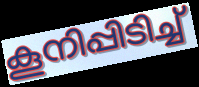
കൂനിപ്പിടിച്ച്